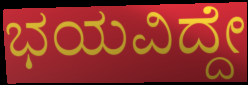
ಭಯವಿದ್ದೇ